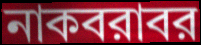
নাকবরাবর